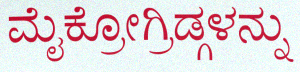
ಮೈಕ್ರೋಗ್ರಿಡ್ಗಳನ್ನು